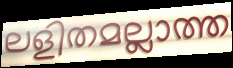
ലളിതമല്ലാത്ത